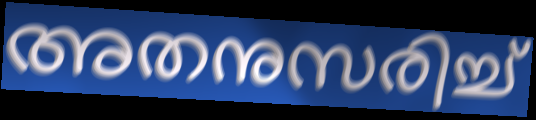
അതനുസരിച്ച്